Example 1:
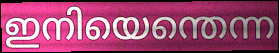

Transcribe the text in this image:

ഇനിയെന്തെന്ന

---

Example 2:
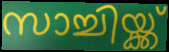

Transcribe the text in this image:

സാച്ചിയ്ക്ക്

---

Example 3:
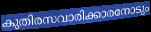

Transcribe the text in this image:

കുതിരസവാരിക്കാരനോടും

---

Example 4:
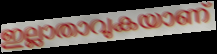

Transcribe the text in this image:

ഇല്ലാതാവുകയാണ്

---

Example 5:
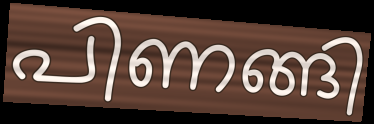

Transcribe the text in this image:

പിണങ്ങി